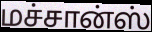
மச்சான்ஸ்